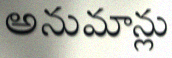
అనుమాన్లు